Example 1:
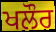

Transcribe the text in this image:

ਖਲੌਰ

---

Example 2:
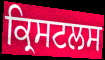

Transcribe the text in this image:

ਕ੍ਰਿਸਟਲਸ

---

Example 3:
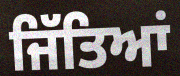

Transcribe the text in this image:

ਜਿੱਤਿਆਂ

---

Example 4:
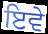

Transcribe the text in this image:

ਇਵੇ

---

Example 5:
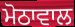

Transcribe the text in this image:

ਮੋਠਾਵਾਲ